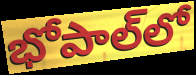
భోపాల్‌లో